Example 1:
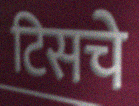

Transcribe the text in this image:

टिसचे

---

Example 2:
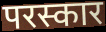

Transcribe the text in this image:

परस्कार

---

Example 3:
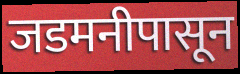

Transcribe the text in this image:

जडमनीपासून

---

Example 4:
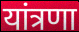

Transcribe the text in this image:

यांत्रणा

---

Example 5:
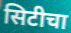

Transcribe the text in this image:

सिटीचा